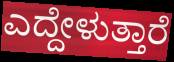
ಎದ್ದೇಳುತ್ತಾರೆ